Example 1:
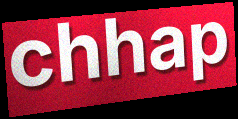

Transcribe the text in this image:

chhap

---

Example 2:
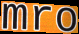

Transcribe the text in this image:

mro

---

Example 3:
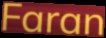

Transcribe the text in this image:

Faran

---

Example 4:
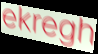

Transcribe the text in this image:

ekregh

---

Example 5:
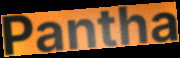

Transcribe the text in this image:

Pantha